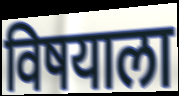
विषयाला